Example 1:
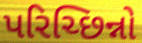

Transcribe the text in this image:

પરિચ્છિન્નો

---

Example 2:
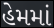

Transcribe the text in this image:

હેમમાં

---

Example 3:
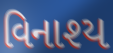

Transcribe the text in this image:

વિનાશ્ય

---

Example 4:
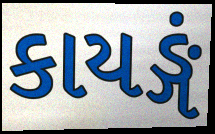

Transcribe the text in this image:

કાયઙ્ગં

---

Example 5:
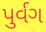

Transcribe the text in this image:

પુર્વગ